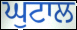
ਘੁਟਾਲ